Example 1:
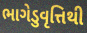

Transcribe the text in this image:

ભાગેડુવૃત્તિથી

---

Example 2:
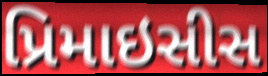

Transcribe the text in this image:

પ્રિમાઇસીસ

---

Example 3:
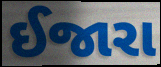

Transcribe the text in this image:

ઈજારા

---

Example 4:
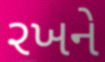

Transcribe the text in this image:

રખને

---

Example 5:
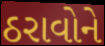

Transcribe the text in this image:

ઠરાવોને